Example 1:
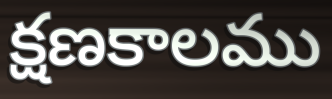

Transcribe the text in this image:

క్షణకాలము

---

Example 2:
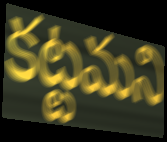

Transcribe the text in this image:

కట్టమని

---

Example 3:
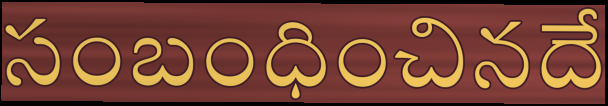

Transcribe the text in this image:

సంబంధించినదే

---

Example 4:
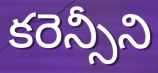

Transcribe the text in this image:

కరెన్సీని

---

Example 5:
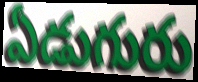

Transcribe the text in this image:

ఏడుగురు